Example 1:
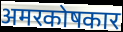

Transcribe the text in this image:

अमरकोषकार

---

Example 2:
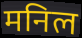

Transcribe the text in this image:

मनिल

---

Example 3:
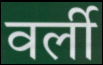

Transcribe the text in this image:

वर्ली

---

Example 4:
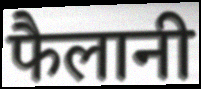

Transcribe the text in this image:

फैलानी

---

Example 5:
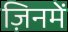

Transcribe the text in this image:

ज़िनमें